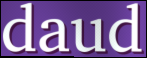
daud